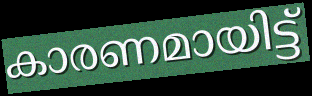
കാരണമായിട്ട്